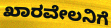
ಖಾರವೇಲನಿಗೆ